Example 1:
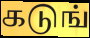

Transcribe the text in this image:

கடுங்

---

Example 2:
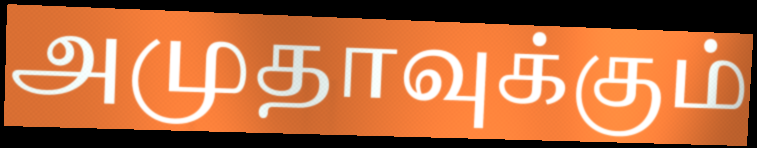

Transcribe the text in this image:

அமுதாவுக்கும்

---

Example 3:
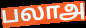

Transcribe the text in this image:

பலாஅ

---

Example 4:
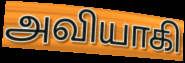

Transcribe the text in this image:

அவியாகி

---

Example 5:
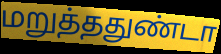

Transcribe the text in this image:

மறுத்ததுண்டா